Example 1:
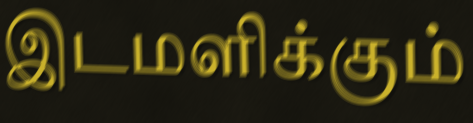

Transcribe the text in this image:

இடமளிக்கும்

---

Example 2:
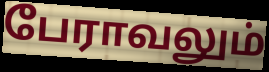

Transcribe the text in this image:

பேராவலும்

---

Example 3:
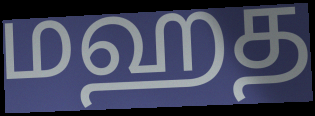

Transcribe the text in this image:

மஹத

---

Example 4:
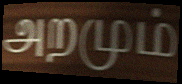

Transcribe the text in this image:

அறமும்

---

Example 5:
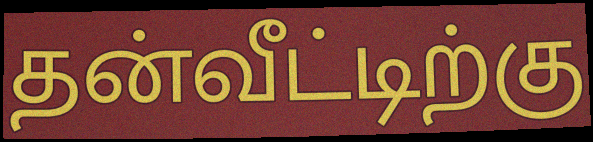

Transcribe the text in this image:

தன்வீட்டிற்கு